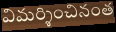
విమర్శించినంత